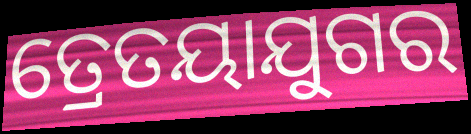
ତ୍ରେତୟାଯୁଗର